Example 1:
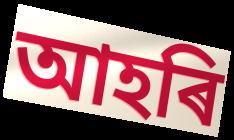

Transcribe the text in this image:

আহৰি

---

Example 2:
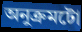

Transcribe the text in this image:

অনুক্ৰমটো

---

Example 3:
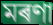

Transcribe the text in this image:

মৰণা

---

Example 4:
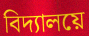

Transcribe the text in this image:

বিদ্যালয়ে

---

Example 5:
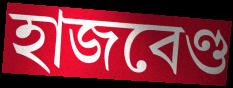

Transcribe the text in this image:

হাজবেণ্ড